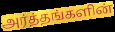
அர்த்தங்களின்